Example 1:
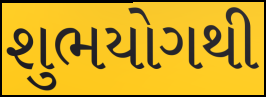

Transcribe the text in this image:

શુભયોગથી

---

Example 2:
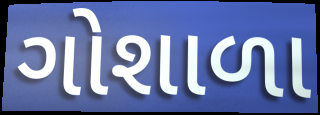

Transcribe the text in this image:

ગોશાળા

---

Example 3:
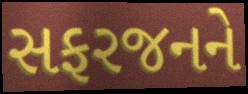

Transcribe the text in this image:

સફરજનને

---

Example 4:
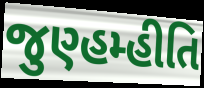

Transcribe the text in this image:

જુણ્હમ્હીતિ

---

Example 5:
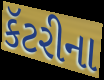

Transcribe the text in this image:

કૅટરીના